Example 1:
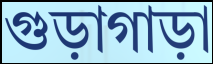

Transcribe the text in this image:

গুড়াগাড়া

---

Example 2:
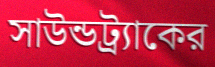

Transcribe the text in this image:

সাউন্ডট্র্যাকের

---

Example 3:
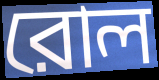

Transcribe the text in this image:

রোল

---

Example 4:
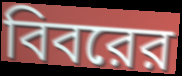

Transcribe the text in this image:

বিবরের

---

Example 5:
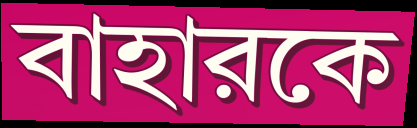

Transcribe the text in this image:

বাহারকে